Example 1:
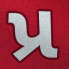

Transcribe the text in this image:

પ્ર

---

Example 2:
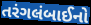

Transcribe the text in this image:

તરંગલંબાઈનો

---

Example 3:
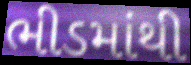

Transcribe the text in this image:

ભીડમાંથી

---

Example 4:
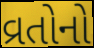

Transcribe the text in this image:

વ્રતોનો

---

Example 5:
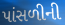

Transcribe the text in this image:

પાંસળીની